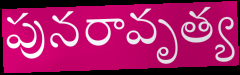
పునరావృత్య